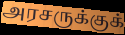
அரசருக்குக்